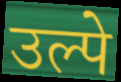
उल्पे